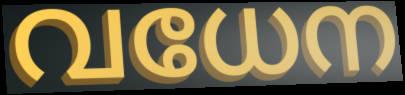
വധേന